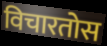
विचारतोस